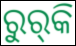
ରୁର୍‍କି